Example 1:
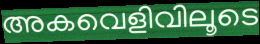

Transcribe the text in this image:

അകവെളിവിലൂടെ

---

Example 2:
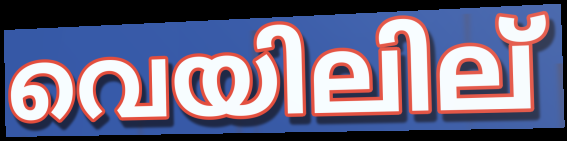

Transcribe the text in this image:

വെയിലില്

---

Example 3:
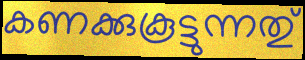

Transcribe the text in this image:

കണക്കുകൂട്ടുന്നതു്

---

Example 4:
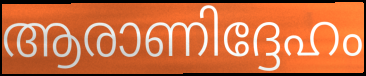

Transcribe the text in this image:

ആരാണിദ്ദേഹം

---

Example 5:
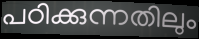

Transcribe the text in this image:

പഠിക്കുന്നതിലും